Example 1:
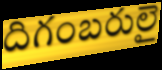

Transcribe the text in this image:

దిగంబరులై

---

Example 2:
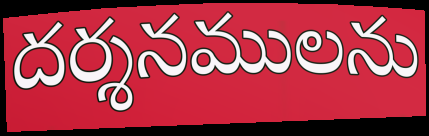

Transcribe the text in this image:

దర్శనములను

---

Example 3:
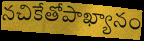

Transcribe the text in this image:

నచికేతోపాఖ్యానం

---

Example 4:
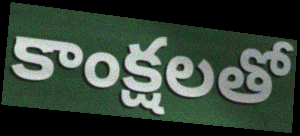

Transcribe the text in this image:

కాంక్షలతో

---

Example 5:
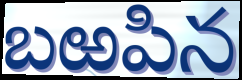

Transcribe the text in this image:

బఱపిన